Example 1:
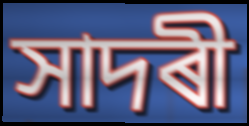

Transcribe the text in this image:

সাদৰী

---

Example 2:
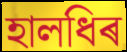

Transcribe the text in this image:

হালধিৰ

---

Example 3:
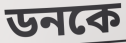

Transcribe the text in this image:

ডনকে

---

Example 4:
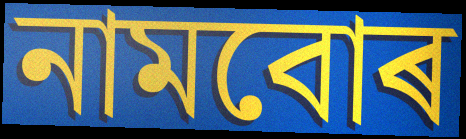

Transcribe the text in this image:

নামবোৰ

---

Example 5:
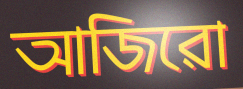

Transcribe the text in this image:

আজিৱো